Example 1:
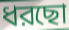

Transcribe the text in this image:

ধরছো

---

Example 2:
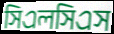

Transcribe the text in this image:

সিএলসিএস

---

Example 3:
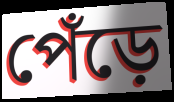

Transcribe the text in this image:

পেঁড়ে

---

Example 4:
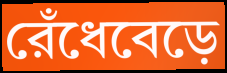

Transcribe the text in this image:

রেঁধেবেড়ে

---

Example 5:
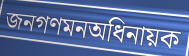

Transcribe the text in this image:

জনগণমনঅধিনায়ক